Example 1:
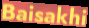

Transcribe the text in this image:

Baisakhi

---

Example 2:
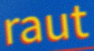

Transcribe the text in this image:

raut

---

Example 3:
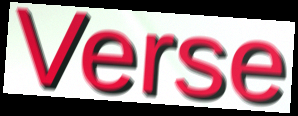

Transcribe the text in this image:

Verse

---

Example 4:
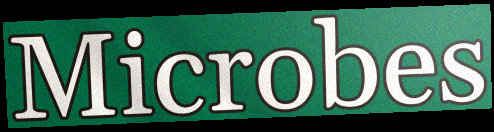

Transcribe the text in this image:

Microbes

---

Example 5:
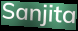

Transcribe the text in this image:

Sanjita